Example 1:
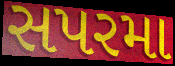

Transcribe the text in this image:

સપરમા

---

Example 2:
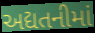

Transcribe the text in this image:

અદ્યતનીમાં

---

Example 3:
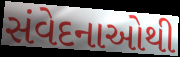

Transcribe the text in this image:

સંવેદનાઓથી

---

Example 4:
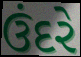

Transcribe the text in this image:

ઉંદરે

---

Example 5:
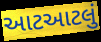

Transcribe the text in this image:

આટઆટલું